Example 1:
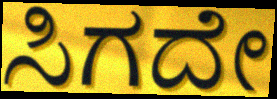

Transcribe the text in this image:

ಸಿಗದೇ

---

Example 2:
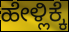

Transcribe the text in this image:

ಹೇಳ್ಲಿಕ್ಕೆ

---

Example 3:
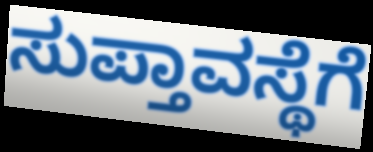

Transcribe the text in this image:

ಸುಪ್ತಾವಸ್ಥೆಗೆ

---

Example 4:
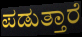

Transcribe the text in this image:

ಪಡುತ್ತಾರೆ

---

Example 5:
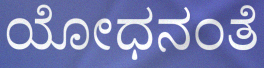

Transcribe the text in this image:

ಯೋಧನಂತೆ